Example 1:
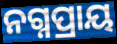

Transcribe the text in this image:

ନଗ୍ନପ୍ରାୟ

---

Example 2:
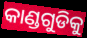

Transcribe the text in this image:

କାଣ୍ଡଗୁଡିକୁ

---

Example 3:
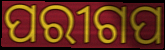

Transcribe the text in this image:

ପରୀଗପ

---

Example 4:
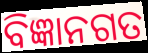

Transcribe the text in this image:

ବିଜ୍ଞାନଗତ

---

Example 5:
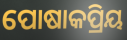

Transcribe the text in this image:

ପୋଷାକପ୍ରିୟ